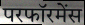
परफॉरमेंस